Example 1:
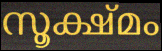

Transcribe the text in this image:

സൂക്ഷ്‌മം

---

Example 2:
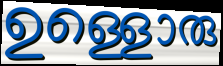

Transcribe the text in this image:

ഉള്ളൊരു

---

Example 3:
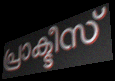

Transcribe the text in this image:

പ്രാക്ടീസ്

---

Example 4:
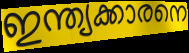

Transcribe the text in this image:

ഇന്ത്യക്കാരനെ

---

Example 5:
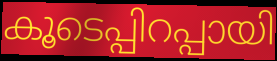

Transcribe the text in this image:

കൂടെപ്പിറപ്പായി